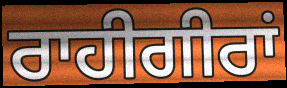
ਰਾਹੀਗੀਰਾਂ